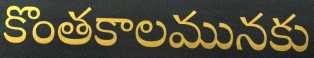
కొంతకాలమునకు